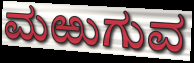
ಮಱುಗುವ